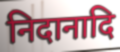
निदानादि